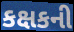
કક્ષકની